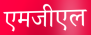
एमजीएल